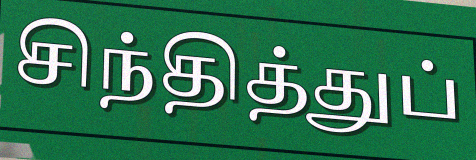
சிந்தித்துப்